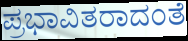
ಪ್ರಭಾವಿತರಾದಂತೆ